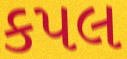
કપલ